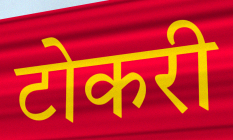
टोकरी